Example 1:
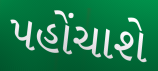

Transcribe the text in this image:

પહોંચાશે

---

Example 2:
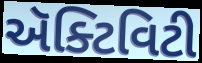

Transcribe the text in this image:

ઍક્ટિવિટી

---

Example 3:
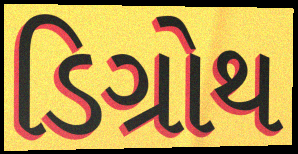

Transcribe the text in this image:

ડિગ્રોથ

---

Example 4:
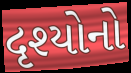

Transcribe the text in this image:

દૃશ્યોનો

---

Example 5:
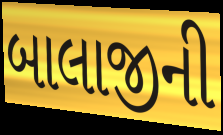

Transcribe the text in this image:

બાલાજીની